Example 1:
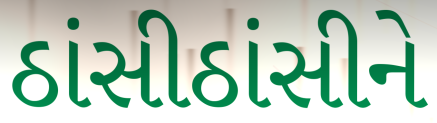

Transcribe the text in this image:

ઠાંસીઠાંસીને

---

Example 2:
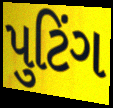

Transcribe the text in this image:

પુટિંગ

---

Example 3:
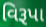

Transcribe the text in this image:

વિરૂપા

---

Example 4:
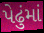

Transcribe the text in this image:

પેઢુંમાં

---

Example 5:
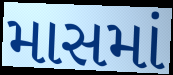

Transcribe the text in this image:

માસમાં